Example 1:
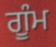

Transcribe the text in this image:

ਗੂੰਮ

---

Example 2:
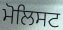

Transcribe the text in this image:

ਮੋਲਿਸਟ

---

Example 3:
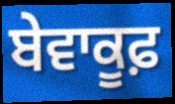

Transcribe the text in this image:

ਬੇਵਾਕੂਫ਼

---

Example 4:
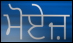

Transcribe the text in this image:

ਮੋਏਜ਼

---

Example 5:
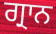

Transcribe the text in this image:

ਗ੍ਰਾਨ